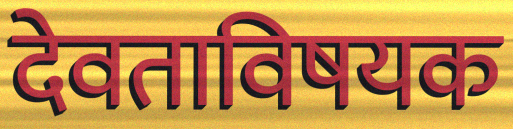
देवताविषयक